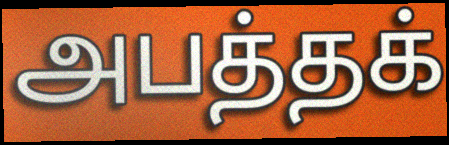
அபத்தக்